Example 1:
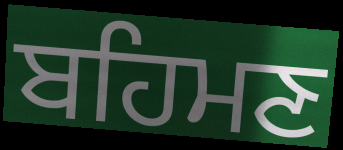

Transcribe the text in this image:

ਬਹਿਮਣ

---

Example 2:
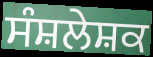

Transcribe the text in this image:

ਸੰਸ਼ਲੇਸ਼ਕ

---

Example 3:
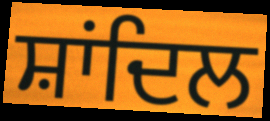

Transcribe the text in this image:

ਸ਼ਾਂਦਿਲ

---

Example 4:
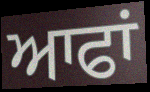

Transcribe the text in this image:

ਆਫਾਂ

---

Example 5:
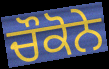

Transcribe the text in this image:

ਚੌਕੋਨੇ